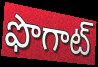
ఫొగాట్